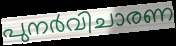
പുനർവിചാരണ